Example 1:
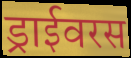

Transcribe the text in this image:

ड्राईवरस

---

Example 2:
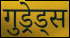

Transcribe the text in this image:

गुड्रेड्स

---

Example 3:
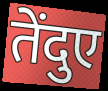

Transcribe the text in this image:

तेंदुए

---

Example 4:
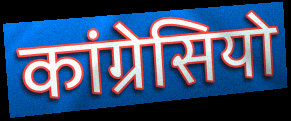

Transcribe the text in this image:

कांग्रेसियो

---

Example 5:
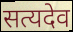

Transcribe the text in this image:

सत्यदेव